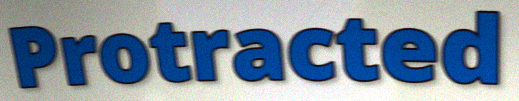
Protracted